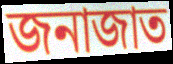
জনাজাত